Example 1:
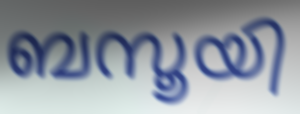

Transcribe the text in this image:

ബസൂയി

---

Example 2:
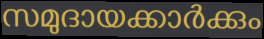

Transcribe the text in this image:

സമുദായക്കാർക്കും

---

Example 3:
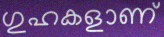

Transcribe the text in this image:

ഗുഹകളാണ്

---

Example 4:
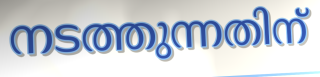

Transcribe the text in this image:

നടത്തുന്നതിന്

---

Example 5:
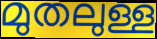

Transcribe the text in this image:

മുതലുള്ള